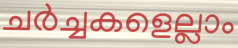
ചർച്ചകളെല്ലാം